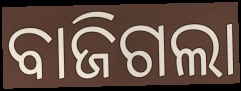
ବାଜିଗଲା